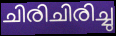
ചിരിചിരിച്ചു